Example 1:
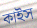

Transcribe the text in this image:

কাইস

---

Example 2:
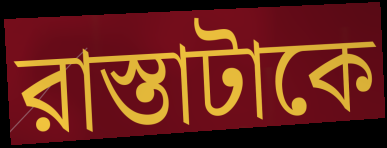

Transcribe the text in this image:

রাস্তাটাকে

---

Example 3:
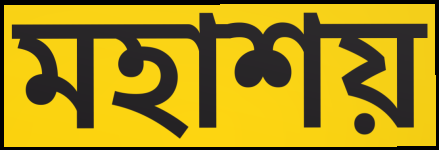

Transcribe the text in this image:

মহাশয়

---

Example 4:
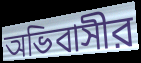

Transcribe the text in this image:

অভিবাসীর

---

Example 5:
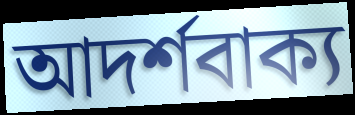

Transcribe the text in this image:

আদর্শবাক্য